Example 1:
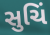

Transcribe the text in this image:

સુચિં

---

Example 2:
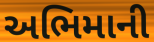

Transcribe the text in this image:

અભિમાની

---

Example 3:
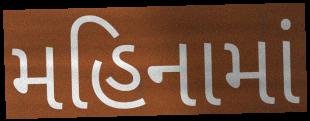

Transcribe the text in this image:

મહિનામાં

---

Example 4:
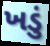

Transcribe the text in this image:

ખડું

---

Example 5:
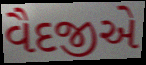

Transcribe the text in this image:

વૈદજીએ